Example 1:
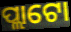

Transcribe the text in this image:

ପ୍ଲାଟୋ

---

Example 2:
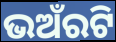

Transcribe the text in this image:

ଭଅଁରଟି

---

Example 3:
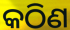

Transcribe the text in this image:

କଠିଣ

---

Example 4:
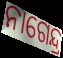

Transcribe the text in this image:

ନାଗେନ୍ଦ୍ର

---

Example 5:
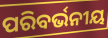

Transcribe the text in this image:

ପରିବର୍ଭନୀୟ